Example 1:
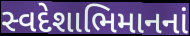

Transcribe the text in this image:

સ્વદેશાભિમાનનાં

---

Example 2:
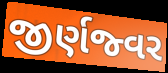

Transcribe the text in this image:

જીર્ણજ્વર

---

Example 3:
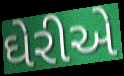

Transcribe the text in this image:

ઘેરીએ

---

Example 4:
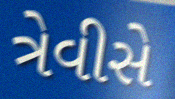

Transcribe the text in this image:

ત્રેવીસે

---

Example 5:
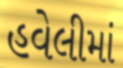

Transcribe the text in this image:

હવેલીમાં